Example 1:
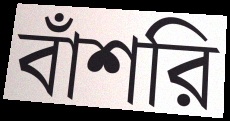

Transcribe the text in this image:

বাঁশরি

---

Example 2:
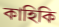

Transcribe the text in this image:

কাহিকি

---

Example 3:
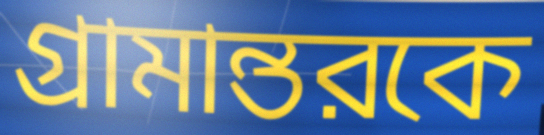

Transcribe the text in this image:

গ্রামান্তরকে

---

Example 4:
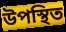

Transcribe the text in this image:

উপস্থিত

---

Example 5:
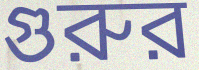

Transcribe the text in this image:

গুরুর